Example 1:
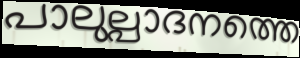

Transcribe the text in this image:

പാലുല്പാദനത്തെ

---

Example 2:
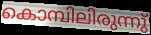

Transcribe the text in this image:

കൊമ്പിലിരുന്നു്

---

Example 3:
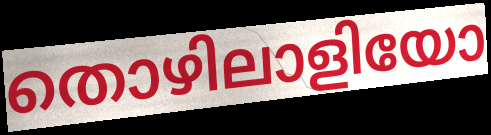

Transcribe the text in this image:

തൊഴിലാളിയോ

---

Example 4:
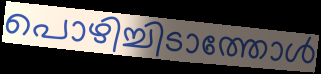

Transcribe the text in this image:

പൊഴിച്ചിടാത്തോൾ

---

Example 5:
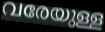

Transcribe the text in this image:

വരേയുള്ള